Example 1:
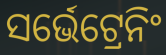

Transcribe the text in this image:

ସର୍ଭେଟ୍ରେନିଂ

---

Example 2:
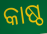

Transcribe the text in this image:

କାଷ୍ଠ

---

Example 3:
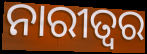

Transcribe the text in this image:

ନାରୀତ୍ଵର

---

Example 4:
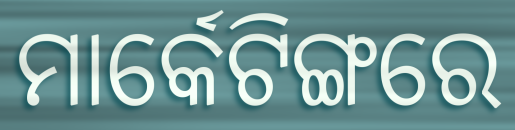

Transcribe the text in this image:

ମାର୍କେଟିଙ୍ଗରେ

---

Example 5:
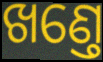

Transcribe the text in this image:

ଖଣ୍ତେ